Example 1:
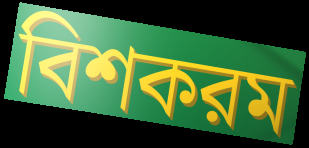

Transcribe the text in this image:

বিশকরম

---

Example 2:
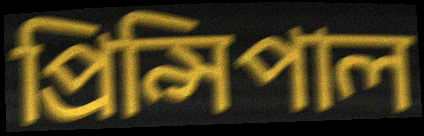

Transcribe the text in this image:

প্রিন্সিপাল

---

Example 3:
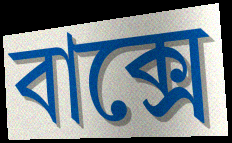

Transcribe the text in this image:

বাক্সে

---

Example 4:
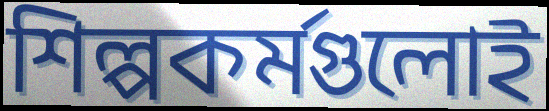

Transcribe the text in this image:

শিল্পকর্মগুলোই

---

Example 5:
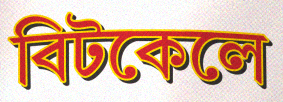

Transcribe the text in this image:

বিটকেলে